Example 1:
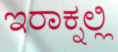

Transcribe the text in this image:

ಇರಾಕ್ನಲ್ಲಿ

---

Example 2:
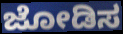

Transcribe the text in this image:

ಜೋಡಿಸ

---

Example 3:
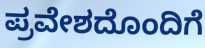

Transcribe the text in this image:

ಪ್ರವೇಶದೊಂದಿಗೆ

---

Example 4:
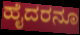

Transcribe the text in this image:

ಹೈದರನೂ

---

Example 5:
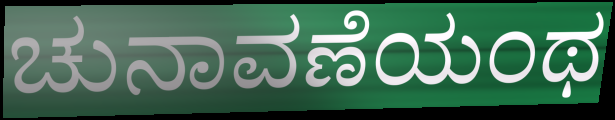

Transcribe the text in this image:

ಚುನಾವಣೆಯಂಥ